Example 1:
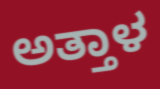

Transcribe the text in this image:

ಅತ್ತಾಳ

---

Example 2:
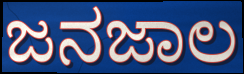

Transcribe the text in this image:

ಜನಜಾಲ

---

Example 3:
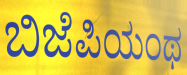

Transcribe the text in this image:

ಬಿಜೆಪಿಯಂಥ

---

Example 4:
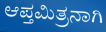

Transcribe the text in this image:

ಆಪ್ತಮಿತ್ರನಾಗಿ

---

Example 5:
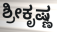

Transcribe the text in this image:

ಶ್ರೀಕೃಷ್ಣ